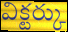
విక్టర్కు